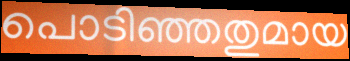
പൊടിഞ്ഞതുമായ